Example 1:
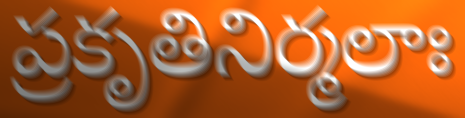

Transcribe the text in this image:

ప్రకృతినిర్మలాః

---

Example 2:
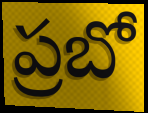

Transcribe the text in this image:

ప్రబో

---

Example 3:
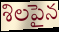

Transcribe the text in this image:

శిలపైన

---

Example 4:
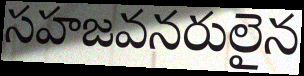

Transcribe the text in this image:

సహజవనరులైన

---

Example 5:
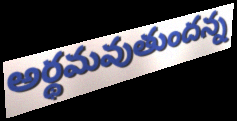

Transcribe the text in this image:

అర్థమవుతుందన్న